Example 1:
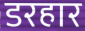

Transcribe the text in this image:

डरहार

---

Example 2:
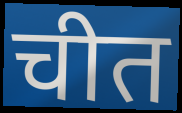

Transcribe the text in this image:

चीत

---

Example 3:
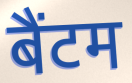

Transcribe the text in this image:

बैंटम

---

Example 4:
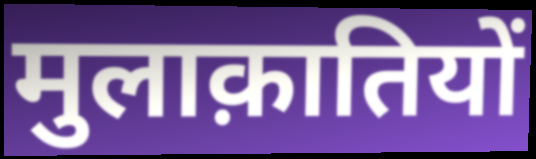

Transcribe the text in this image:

मुलाक़ातियों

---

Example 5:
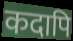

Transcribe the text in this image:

कदापि